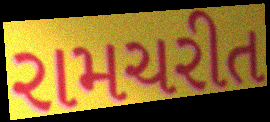
રામચરીત